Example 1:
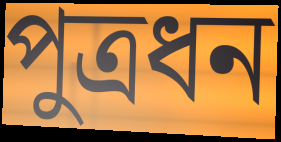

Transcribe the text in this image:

পুত্রধন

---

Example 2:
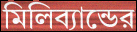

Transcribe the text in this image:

মিলিব্যান্ডের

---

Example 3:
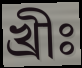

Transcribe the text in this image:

খ্রীঃ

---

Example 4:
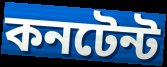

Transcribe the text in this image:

কনটেন্ট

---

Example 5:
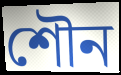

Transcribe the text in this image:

শৌন